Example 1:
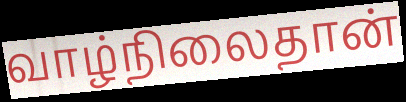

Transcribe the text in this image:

வாழ்நிலைதான்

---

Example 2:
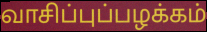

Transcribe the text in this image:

வாசிப்புப்பழக்கம்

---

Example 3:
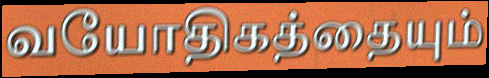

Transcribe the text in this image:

வயோதிகத்தையும்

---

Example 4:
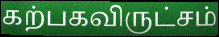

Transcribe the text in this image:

கற்பகவிருட்சம்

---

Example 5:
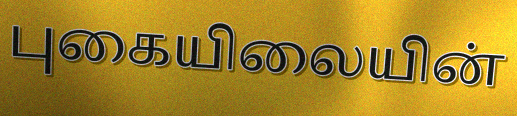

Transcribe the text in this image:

புகையிலையின்